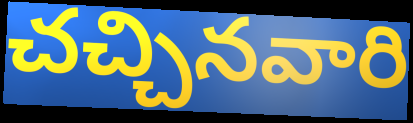
చచ్చినవారి